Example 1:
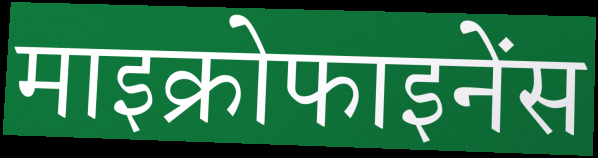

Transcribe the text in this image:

माइक्रोफाइनेंस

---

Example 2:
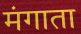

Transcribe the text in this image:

मंगाता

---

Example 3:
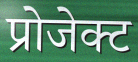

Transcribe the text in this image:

प्रोजेक्ट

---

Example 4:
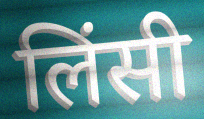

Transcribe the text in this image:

लिंसी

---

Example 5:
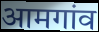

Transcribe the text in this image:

आमगांव